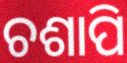
ଚଶାପି